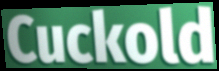
Cuckold